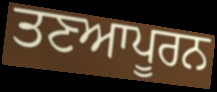
ਤਣਆਪੂਰਨ